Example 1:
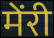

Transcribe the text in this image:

मेंरी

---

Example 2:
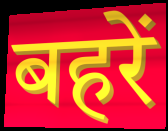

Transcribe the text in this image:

बहरें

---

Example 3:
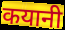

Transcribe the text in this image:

कयानी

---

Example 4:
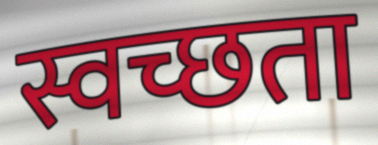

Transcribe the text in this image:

स्वच्छता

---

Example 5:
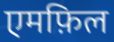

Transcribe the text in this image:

एमफ़िल